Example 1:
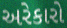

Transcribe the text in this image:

અરેકારો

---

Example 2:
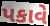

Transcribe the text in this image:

પકાવે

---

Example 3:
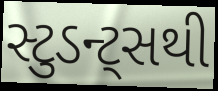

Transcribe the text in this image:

સ્ટુડન્ટ્સથી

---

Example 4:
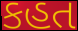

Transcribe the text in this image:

કહત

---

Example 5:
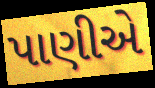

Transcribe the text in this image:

પાણીએ